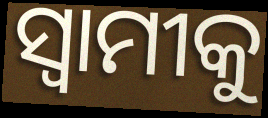
ସ୍ବାମୀକୁ